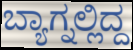
ಬ್ಯಾಗ್ನಲ್ಲಿದ್ದ